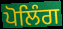
ਪੋਲਿੰਗ